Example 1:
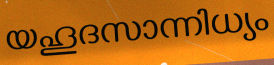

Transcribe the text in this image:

യഹൂദസാന്നിധ്യം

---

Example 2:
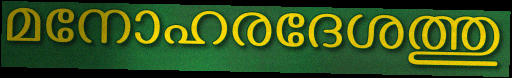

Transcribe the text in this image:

മനോഹരദേശത്തു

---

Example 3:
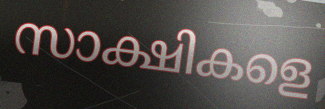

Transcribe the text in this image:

സാക്ഷികളെ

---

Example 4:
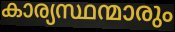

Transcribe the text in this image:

കാര്യസ്ഥന്മാരും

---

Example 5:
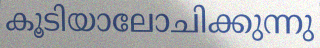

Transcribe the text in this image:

കൂടിയാലോചിക്കുന്നു